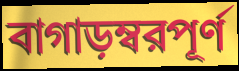
বাগাড়ম্বরপূর্ণ